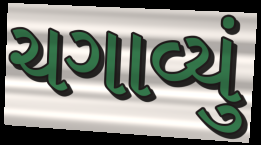
ચગાવ્યું